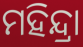
ମହିନ୍ଦ୍ରା